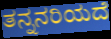
ತನ್ನನರಿಯದೆ